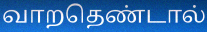
வாறதெண்டால்